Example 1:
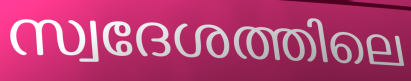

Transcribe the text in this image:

സ്വദേശത്തിലെ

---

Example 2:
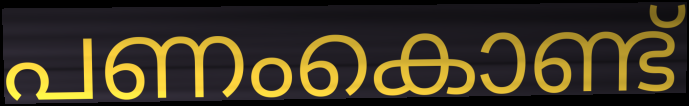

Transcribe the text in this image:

പണംകൊണ്ട്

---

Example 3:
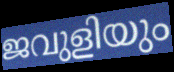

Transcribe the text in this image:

ജവുളിയും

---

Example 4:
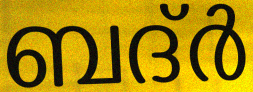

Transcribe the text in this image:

ബദ്ർ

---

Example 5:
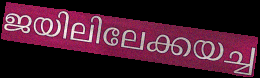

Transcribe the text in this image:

ജയിലിലേക്കയച്ച